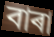
বাৰা